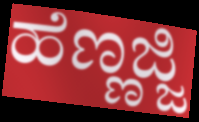
ಹೆಣ್ಣಜ್ಜಿ